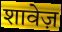
शावेज़